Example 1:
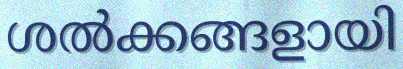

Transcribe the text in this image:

ശൽക്കങ്ങളായി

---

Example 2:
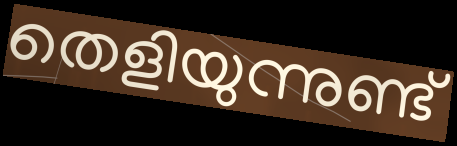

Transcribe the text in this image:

തെളിയുന്നുണ്ട്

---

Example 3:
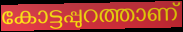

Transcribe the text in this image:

കോട്ടപ്പുറത്താണ്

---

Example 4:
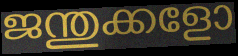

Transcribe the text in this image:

ജന്തുക്കളോ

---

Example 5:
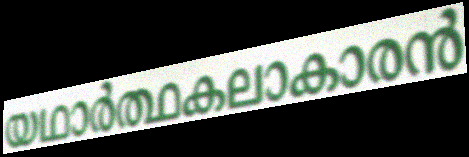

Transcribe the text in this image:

യഥാർത്ഥകലാകാരൻ